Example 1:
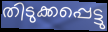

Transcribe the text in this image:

തിടുക്കപ്പെട്ടു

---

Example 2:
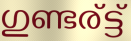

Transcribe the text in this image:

ഗുണ്ടര്ട്ട്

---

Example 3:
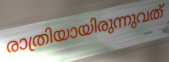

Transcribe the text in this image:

രാത്രിയായിരുന്നുവത്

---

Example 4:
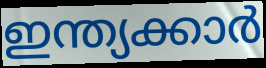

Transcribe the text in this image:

ഇന്ത്യക്കാർ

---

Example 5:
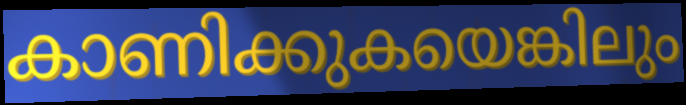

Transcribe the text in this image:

കാണിക്കുകയെങ്കിലും